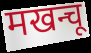
मखन्चू